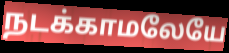
நடக்காமலேயே